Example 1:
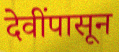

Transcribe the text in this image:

देवींपासून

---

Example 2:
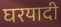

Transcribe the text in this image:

घरयादी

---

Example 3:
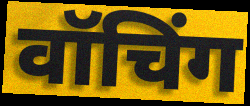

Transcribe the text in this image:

वॉचिंग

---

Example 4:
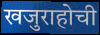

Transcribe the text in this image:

खजुराहोची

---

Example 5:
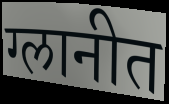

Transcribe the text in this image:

ग्लानीत